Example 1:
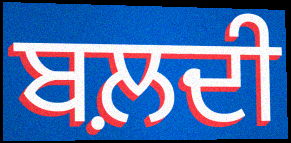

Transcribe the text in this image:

ਬਲ਼ਦੀ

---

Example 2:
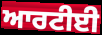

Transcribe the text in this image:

ਆਰਟੀਈ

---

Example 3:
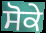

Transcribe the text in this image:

ਸੋਕੇ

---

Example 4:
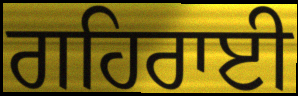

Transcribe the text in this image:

ਗਹਿਰਾਈ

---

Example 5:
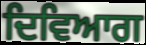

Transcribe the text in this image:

ਦਿਵਿਆਗ